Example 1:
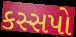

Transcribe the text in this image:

કસ્સપો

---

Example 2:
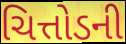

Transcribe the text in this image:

ચિત્તોડની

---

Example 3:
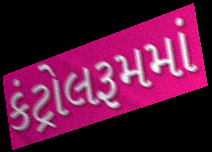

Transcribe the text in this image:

કંટ્રોલરૂમમાં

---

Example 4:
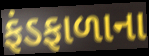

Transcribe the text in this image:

ફંડફાળાના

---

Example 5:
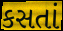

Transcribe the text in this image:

કસતાં